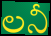
లనీ